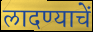
लादण्याचें